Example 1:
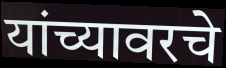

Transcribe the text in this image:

यांच्यावरचे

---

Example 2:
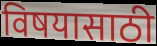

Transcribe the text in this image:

विषयासाठी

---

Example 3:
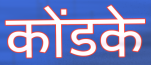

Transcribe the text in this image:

कोंडके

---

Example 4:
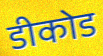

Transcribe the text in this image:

डीकोड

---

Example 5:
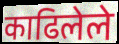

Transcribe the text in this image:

काढिलेले